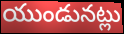
యుండునట్లు